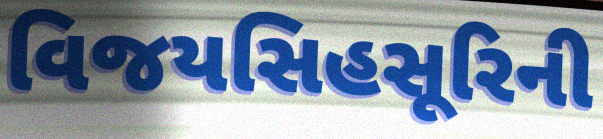
વિજયસિહસૂરિની